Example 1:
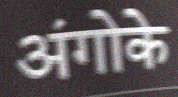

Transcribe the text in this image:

अंगोके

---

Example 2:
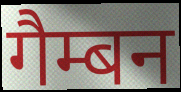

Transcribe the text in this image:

गैम्बन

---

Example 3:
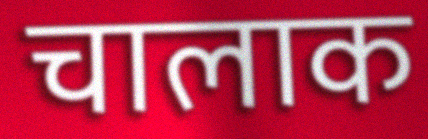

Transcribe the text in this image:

चालाक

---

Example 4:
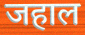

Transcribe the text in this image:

जहाल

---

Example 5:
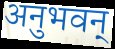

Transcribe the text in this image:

अनुभवन्